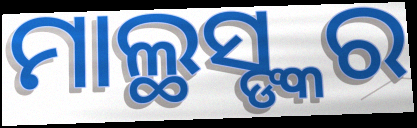
ମାଲ୍ଥସ୍ଙ୍କର